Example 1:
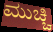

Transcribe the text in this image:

ಮುಚ್ಚಿ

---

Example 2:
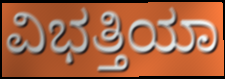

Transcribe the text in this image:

ವಿಭತ್ತಿಯಾ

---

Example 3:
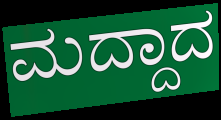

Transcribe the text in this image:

ಮದ್ದಾದ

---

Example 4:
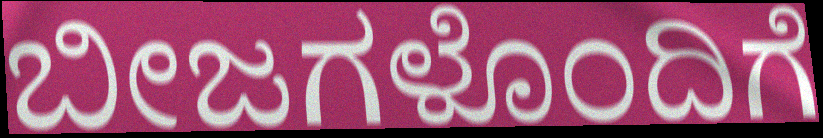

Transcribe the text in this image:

ಬೀಜಗಳೊಂದಿಗೆ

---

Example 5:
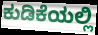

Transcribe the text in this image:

ಕುಡಿಕೆಯಲ್ಲಿ